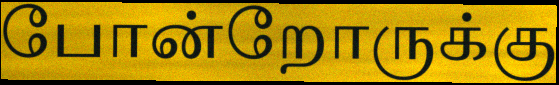
போன்றோருக்கு